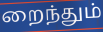
றைந்தும்